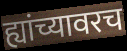
ह्यांच्यावरच